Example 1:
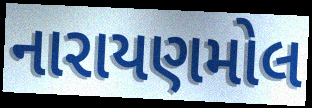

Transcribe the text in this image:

નારાયણમોલ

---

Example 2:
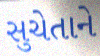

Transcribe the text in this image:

સુચેતાને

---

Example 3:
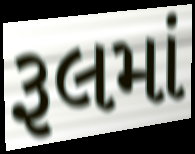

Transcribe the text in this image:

રૂલમાં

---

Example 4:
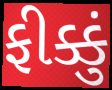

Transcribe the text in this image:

ફીક્કું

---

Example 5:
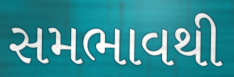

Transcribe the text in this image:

સમભાવથી